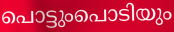
പൊട്ടുംപൊടിയും